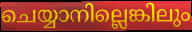
ചെയ്യാനില്ലെങ്കിലും